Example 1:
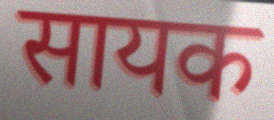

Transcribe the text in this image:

सायक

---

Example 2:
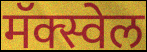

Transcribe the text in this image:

मॅक्स्वेल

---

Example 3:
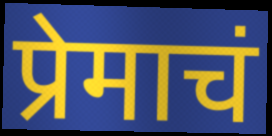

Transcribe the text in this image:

प्रेमाचं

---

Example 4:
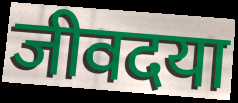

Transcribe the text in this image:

जीवदया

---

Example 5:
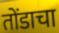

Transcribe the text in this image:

तोंडाचा